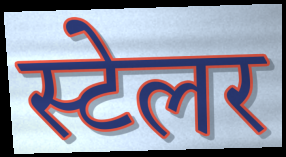
स्टेलर